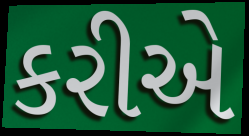
કરીએ